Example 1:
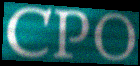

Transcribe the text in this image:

CPO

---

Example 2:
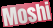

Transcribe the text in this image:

Moshi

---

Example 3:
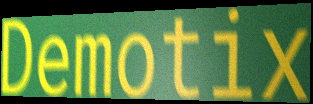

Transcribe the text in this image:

Demotix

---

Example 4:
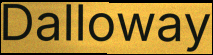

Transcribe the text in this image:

Dalloway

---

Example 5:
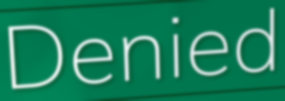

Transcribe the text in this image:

Denied